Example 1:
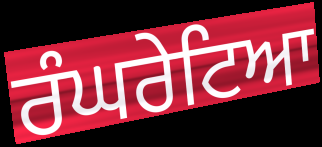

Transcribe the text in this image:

ਰੰਘਰੇਟਿਆ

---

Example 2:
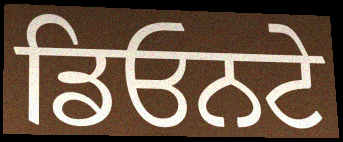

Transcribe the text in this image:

ਡਿਓਨਟੇ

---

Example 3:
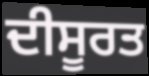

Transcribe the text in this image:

ਦੀਸੂਰਤ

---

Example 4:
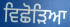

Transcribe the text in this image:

ਵਿਛੋੜਿਆ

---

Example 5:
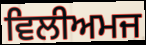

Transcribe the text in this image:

ਵਿਲੀਅਮਜ